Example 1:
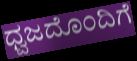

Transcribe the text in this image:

ಧ್ವಜದೊಂದಿಗೆ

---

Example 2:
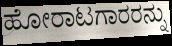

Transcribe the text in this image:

ಹೋರಾಟಗಾರರನ್ನು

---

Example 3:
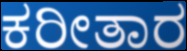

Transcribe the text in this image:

ಕರೀತಾರ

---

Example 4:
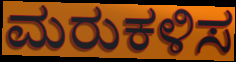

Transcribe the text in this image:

ಮರುಕಳಿಸ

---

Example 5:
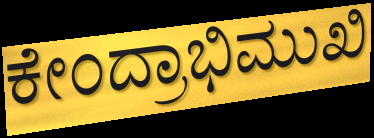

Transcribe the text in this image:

ಕೇಂದ್ರಾಭಿಮುಖಿ